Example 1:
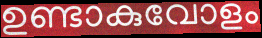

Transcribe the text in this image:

ഉണ്ടാകുവോളം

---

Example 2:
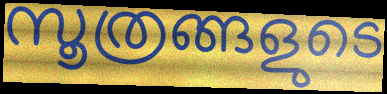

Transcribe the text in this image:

സൂത്രങ്ങളുടെ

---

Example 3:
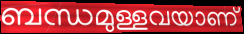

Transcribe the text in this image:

ബന്ധമുള്ളവയാണ്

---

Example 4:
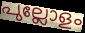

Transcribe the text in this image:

പുല്ലോളം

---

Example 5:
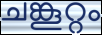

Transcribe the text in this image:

ചങ്കൂറ്റം